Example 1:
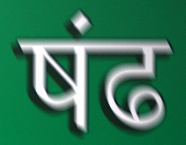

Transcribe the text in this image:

षंढ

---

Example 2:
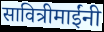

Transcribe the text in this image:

सावित्रीमाईंनी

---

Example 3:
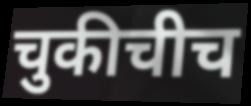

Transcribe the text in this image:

चुकीचीच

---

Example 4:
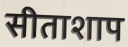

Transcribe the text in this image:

सीताशाप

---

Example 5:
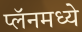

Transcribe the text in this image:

प्लॅनमध्ये